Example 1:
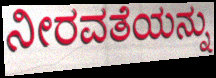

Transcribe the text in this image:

ನೀರವತೆಯನ್ನು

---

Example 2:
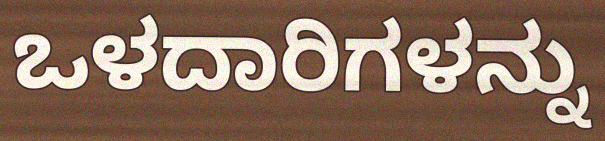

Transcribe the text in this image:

ಒಳದಾರಿಗಳನ್ನು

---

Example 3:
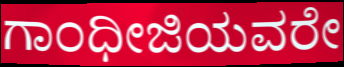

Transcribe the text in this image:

ಗಾಂಧೀಜಿಯವರೇ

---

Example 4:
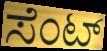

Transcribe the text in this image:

ಸೆಂಟ್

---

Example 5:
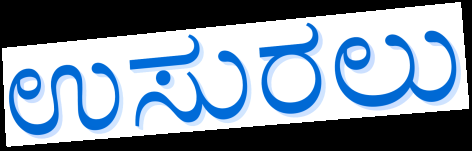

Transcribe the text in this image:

ಉಸುರಲು